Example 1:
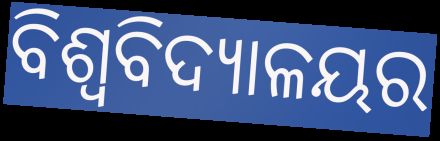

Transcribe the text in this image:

ବିଶ୍ୱବିଦ୍ୟାଳୟର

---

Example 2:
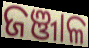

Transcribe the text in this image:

ଜଞ୍ଜାଳ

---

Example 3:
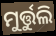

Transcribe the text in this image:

ମୁର୍ତ୍ତୁଲି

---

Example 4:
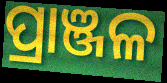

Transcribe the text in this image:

ପ୍ରାଞ୍ଜଳ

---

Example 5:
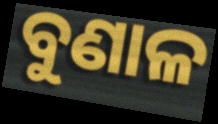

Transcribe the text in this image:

ବୁଣାଳ